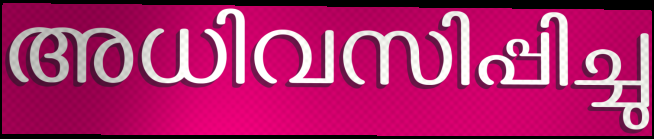
അധിവസിപ്പിച്ചു